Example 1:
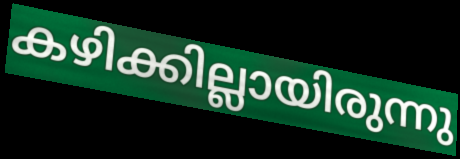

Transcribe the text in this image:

കഴിക്കില്ലായിരുന്നു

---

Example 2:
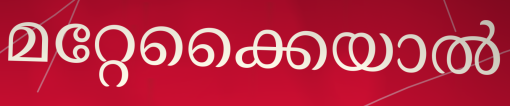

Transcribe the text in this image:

മറ്റേക്കൈയാൽ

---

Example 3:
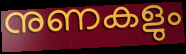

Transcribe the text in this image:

നുണകളും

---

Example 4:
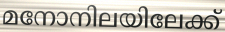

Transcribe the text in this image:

മനോനിലയിലേക്ക്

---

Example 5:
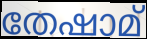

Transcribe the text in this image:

തേഷാമ്